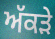
ਅੱਕੜੇ